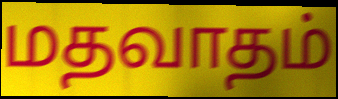
மதவாதம்